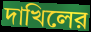
দাখিলের